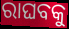
ରାଘବକୁ